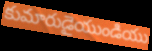
కుమారుడైయుండియు